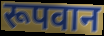
रूपवान